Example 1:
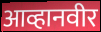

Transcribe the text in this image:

आव्हानवीर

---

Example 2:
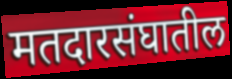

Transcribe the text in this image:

मतदारसंघातील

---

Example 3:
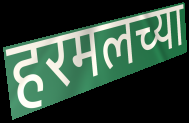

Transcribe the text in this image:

हरमलच्या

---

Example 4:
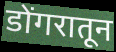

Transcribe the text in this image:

डोंगरातून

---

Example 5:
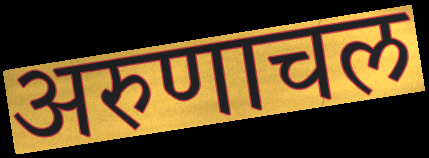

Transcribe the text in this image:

अरुणाचल